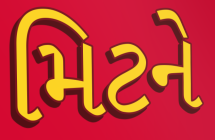
મિટને